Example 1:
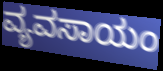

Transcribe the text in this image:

ವ್ಯವಸಾಯಂ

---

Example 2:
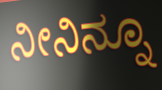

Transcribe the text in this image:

ನೀನಿನ್ನೂ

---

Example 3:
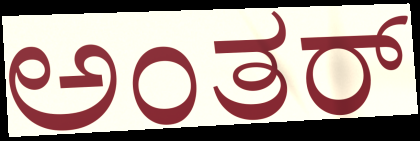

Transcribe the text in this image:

ಅಂತರ್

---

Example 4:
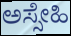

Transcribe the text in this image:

ಅಸ್ಸೇಹಿ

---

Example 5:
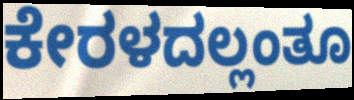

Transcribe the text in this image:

ಕೇರಳದಲ್ಲಂತೂ